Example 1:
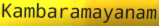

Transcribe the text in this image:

Kambaramayanam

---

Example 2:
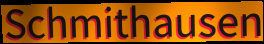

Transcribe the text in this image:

Schmithausen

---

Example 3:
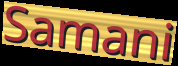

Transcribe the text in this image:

Samani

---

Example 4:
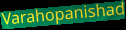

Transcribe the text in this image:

Varahopanishad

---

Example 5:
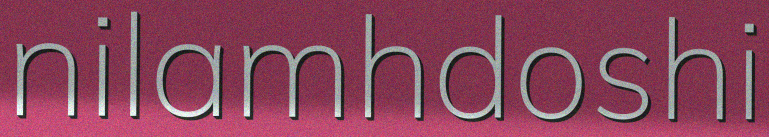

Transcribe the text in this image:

nilamhdoshi